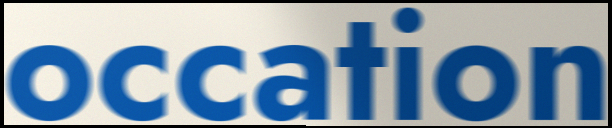
occation